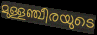
മുള്ളഞ്ചീരയുടെ